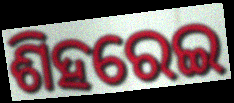
ଶିହରେଇ